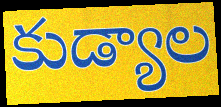
కుడ్యాల